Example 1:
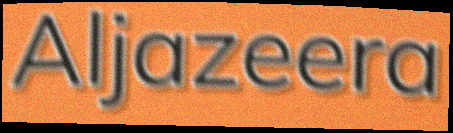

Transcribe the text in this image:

Aljazeera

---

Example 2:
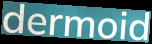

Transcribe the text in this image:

dermoid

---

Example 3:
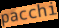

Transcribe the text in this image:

pacchi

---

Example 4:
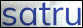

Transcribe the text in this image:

satru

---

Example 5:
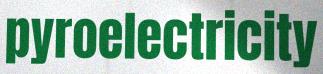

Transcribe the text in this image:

pyroelectricity